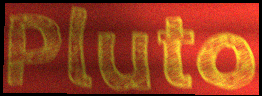
Pluto